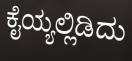
ಕೈಯ್ಯಲ್ಲಿಡಿದು